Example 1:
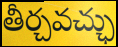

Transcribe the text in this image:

తీర్చవచ్ఛు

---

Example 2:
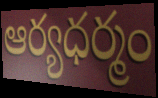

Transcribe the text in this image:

ఆర్యధర్మం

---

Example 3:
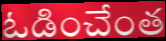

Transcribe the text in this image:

ఓడించేంత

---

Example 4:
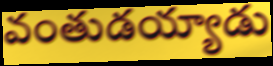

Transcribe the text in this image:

వంతుడయ్యాడు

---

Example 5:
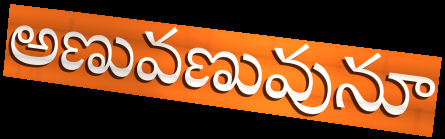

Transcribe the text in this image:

అణువణువునూ